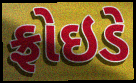
ફ્રોઇડે